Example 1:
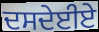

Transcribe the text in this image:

ਦਸਦੇਈਏ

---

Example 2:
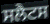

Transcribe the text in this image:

ਸਲੈਟਸ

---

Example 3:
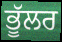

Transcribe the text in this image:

ਭੂੱਲਰ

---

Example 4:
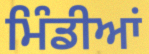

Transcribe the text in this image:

ਮਿੰਡੀਆਂ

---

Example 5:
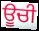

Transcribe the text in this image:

ਊਚੀ